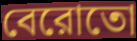
বেরোতো